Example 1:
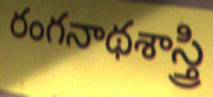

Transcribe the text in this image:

రంగనాథశాస్త్రి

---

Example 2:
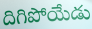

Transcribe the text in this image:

దిగిపోయేడు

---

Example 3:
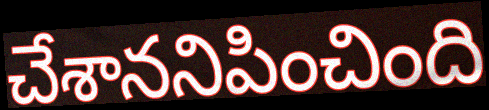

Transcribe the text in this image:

చేశాననిపించింది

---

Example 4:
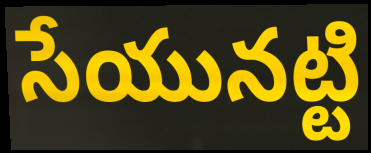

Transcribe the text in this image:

సేయునట్టి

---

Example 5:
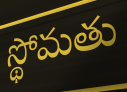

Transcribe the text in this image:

స్థోమతు